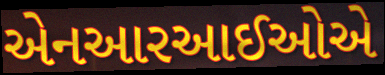
એનઆરઆઈઓએ